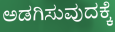
ಅಡಗಿಸುವುದಕ್ಕೆ